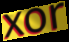
xor